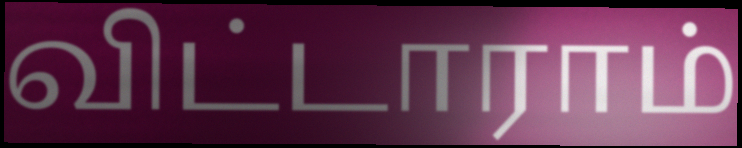
விட்டாராம்